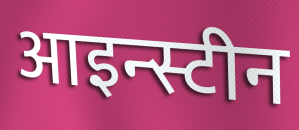
आइन्स्टीन